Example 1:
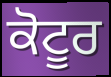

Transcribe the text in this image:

ਕੋਟੂਰ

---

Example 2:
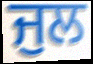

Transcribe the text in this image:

ਜੁਲ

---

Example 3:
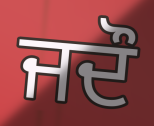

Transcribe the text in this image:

ਜਦੌ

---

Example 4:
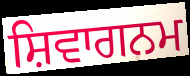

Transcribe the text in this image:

ਸ਼ਿਵਾਗਨਮ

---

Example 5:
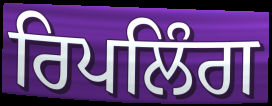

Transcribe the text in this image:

ਰਿਪਲਿੰਗ